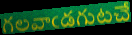
గలవాఁడగుటచే